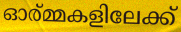
ഓര്മ്മകളിലേക്ക്